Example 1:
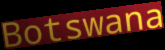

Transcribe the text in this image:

Botswana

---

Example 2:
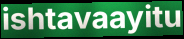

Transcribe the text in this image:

ishtavaayitu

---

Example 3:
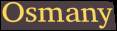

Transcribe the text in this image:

Osmany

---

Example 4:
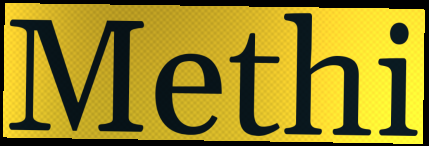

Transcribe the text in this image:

Methi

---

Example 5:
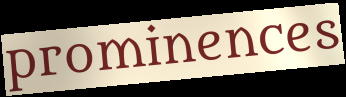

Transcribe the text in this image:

prominences